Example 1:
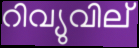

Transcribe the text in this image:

റിവ്യുവില്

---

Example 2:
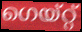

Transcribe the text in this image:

ഗെയ്റ്റ്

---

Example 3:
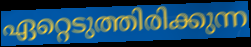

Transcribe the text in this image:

ഏറ്റെടുത്തിരിക്കുന്ന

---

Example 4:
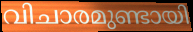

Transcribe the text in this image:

വിചാരമുണ്ടായി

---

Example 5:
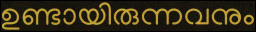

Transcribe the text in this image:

ഉണ്ടായിരുന്നവനും